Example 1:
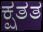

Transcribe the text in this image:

ಕ್ಷತತ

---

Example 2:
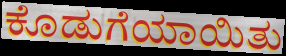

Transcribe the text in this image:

ಕೊಡುಗೆಯಾಯಿತು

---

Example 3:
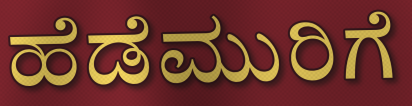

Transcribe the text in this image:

ಹೆಡೆಮುರಿಗೆ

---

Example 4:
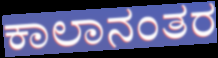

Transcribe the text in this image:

ಕಾಲಾನಂತರ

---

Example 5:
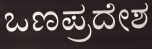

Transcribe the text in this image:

ಒಣಪ್ರದೇಶ